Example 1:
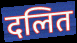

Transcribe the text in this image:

दलित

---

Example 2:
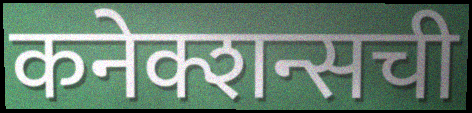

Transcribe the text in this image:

कनेक्शन्सची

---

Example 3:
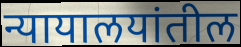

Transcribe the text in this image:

न्यायालयांतील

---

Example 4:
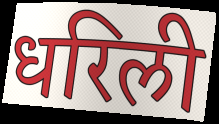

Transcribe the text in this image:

धरिली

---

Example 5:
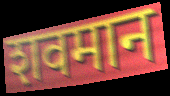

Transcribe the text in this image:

शवमान